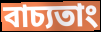
বাচ্যতাং